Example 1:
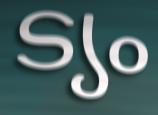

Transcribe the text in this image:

ട്യം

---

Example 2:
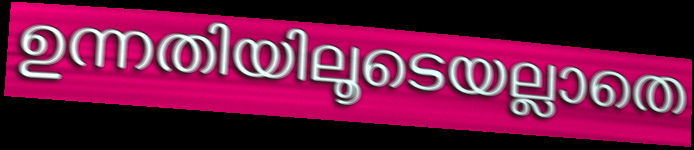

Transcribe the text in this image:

ഉന്നതിയിലൂടെയല്ലാതെ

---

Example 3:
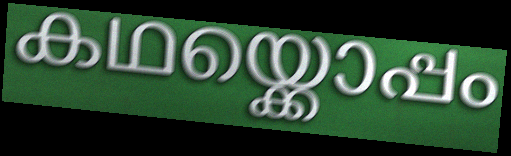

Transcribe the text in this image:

കഥയ്ക്കൊപ്പം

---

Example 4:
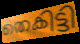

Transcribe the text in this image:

തെകിട്ടി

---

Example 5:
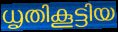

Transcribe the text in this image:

ധൃതികൂട്ടിയ